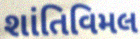
શાંતિવિમલ